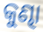
କୁଣ୍ଢା